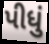
પીધું